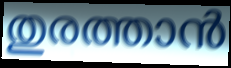
തുരത്താൻ